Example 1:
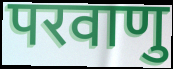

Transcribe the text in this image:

परवाणु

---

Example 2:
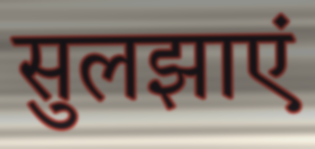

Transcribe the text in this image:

सुलझाएं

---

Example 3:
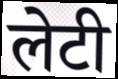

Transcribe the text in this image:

लेटी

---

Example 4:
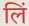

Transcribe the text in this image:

लिं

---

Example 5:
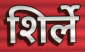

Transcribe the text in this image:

शिर्ले